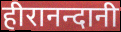
हीरानन्दानी